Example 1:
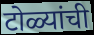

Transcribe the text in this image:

टोळ्यांची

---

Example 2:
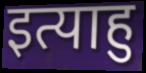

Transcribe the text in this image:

इत्याहु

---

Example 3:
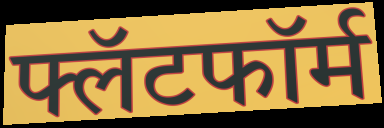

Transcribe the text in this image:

फ्लॅटफॉर्म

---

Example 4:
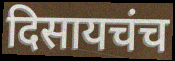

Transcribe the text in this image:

दिसायचंच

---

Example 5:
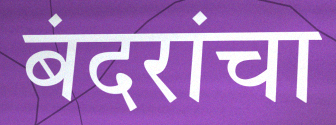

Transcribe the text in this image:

बंदरांचा